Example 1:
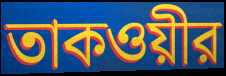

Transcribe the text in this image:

তাকওয়ীর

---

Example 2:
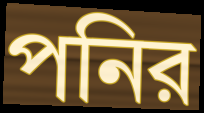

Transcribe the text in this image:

পনির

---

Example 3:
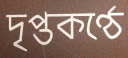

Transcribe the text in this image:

দৃপ্তকণ্ঠে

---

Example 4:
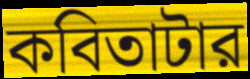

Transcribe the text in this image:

কবিতাটার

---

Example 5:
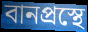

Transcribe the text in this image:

বানপ্রস্থে